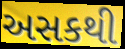
અસકથી